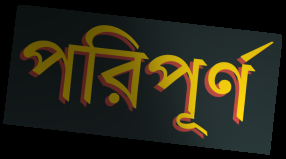
পরিপূর্ণ